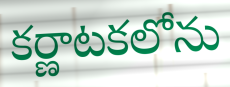
కర్ణాటకలోను